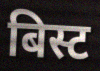
बिस्ट